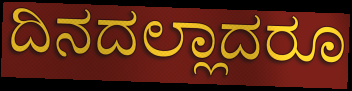
ದಿನದಲ್ಲಾದರೂ